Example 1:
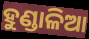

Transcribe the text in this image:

ହୁଣ୍ଡାଳିଆ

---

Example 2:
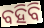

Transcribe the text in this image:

ବହିବି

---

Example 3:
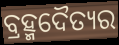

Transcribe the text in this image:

ବ୍ରହ୍ମଦୈତ୍ୟର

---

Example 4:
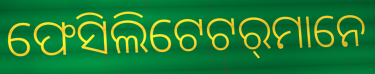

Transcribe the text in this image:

ଫେସିଲିଟେଟର୍‌ମାନେ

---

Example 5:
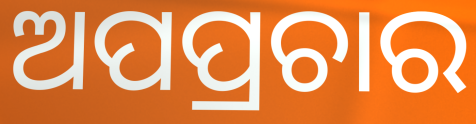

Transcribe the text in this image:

ଅପପ୍ରଚାର